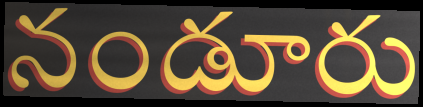
నండూరు